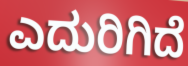
ಎದುರಿಗಿದೆ